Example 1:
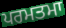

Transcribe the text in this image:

ਪਰਮਤਮਾ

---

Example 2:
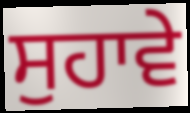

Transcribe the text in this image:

ਸੁਹਾਵੇ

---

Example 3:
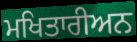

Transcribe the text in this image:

ਮਖਿਤਾਰੀਅਨ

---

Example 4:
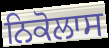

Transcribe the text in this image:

ਨਿਕੋਲਾਸ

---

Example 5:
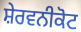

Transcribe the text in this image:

ਸ਼ੇਰਵਨੀਕੋਟ